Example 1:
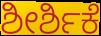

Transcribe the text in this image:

ಶೀರ್ಶಿಕೆ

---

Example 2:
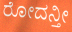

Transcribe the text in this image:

ರೋದನ್ತೀ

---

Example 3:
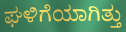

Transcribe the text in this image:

ಘಳಿಗೆಯಾಗಿತ್ತು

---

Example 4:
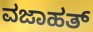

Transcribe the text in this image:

ವಜಾಹತ್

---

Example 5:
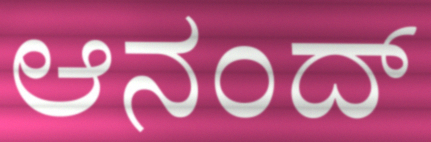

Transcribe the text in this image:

ಆನಂದ್